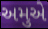
અમુએ